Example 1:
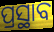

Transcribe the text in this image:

ପ୍ରସ୍ଥାବ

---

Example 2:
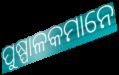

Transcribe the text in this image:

ପୁଷ୍ପାଳକମାନେ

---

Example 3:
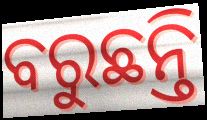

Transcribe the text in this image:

ବରୁଛନ୍ତି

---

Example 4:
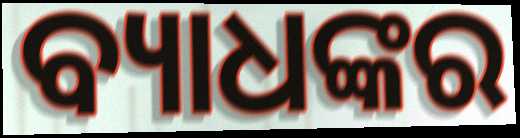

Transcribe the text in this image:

ବ୍ୟାଧଙ୍କର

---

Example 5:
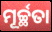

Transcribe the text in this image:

ମୂର୍ଚ୍ଛତା